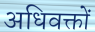
अधिवक्तों